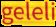
geleli